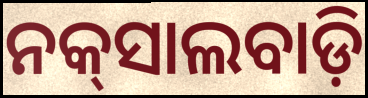
ନକ୍‌ସାଲବାଡ଼ି